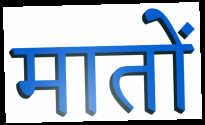
मातों